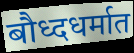
बौध्दधर्मात